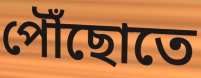
পৌঁছোতে